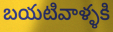
బయటివాళ్ళకి